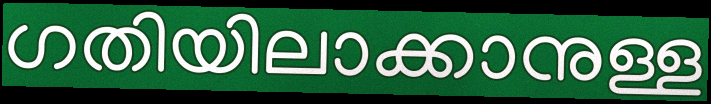
ഗതിയിലാക്കാനുള്ള